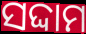
ସଦ୍ଦାମ